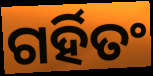
ଗର୍ହିତଂ